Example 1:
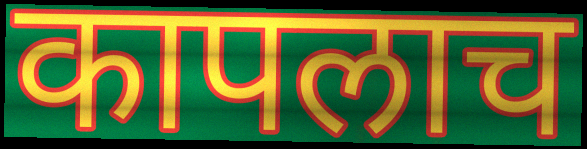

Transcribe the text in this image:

कापलाच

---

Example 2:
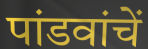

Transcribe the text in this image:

पांडवांचें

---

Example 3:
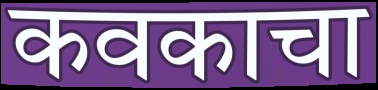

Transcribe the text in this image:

कवकाचा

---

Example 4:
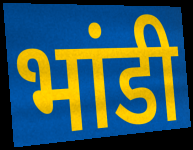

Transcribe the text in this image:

भांडी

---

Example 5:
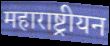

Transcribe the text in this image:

महाराष्ट्रीयन